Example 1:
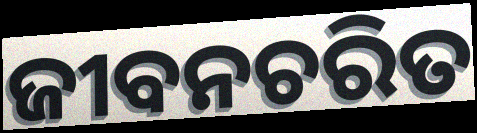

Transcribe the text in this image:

ଜୀବନଚରିତ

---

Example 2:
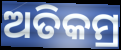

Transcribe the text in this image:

ଅତିକମ୍ର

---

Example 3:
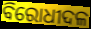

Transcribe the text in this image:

ବିରୋଧୀଦଳ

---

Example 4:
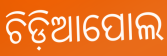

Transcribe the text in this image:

ଚିଡ଼ିଆପୋଲ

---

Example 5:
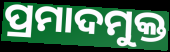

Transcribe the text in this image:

ପ୍ରମାଦମୁକ୍ତ